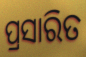
ପ୍ରସାରିତ